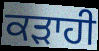
ਕੜਾਹੀ